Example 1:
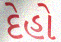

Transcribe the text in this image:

દેહો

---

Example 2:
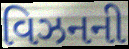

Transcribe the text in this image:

વિઝનની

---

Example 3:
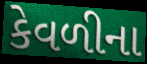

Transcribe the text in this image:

કેવળીના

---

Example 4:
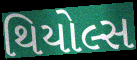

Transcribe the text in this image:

થિયોલ્સ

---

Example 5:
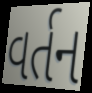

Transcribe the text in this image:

વર્તન